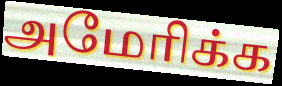
அமேரிக்க